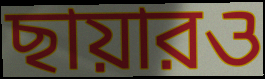
ছায়ারও